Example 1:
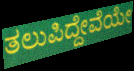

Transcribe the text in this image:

ತಲುಪಿದ್ದೇವೆಯೇ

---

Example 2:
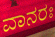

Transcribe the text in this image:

ವಾನರಃ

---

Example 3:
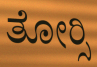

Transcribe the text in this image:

ತೋರ್‍ಸಿ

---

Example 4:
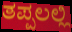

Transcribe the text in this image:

ತಪ್ಪಲಲ್ಲಿ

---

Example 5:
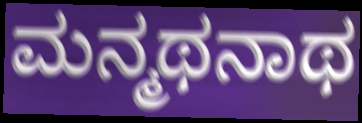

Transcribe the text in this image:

ಮನ್ಮಥನಾಥ